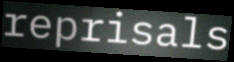
reprisals